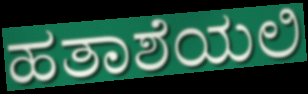
ಹತಾಶೆಯಲಿ